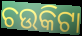
ଚଉକିଟା